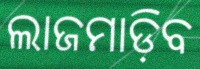
ଲାଜମାଡ଼ିବ